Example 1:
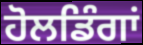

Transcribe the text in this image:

ਹੋਲਡਿੰਗਾਂ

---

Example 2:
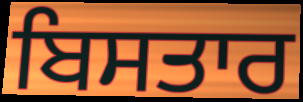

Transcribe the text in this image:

ਬਿਸਤਾਰ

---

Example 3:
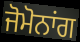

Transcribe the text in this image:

ਜੋਮੋਨਾਂਗ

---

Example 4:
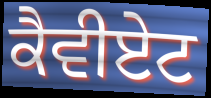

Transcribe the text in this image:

ਕੈਵੀਏਟ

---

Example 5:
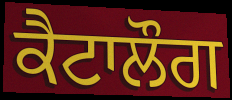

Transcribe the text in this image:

ਕੈਟਾਲੌਗ